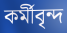
কর্মীবৃন্দ